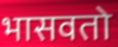
भासवतो